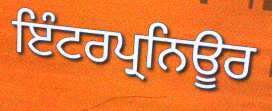
ਇੰਟਰਪ੍ਰਨਿਊਰ